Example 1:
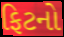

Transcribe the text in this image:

ફિટનો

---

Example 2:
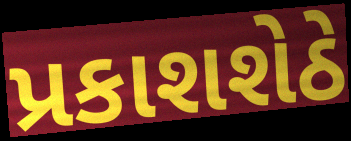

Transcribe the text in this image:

પ્રકાશશેઠે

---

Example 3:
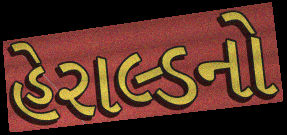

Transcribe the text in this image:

હેરાલ્ડનો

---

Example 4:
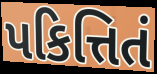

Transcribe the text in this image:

પકિત્તિતં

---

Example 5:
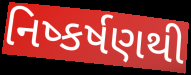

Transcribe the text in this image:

નિષ્કર્ષણથી